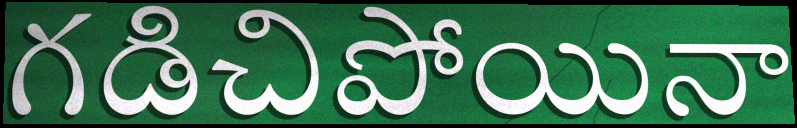
గడిచిపోయినా